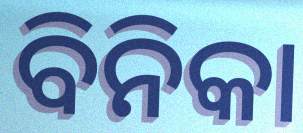
ବିନିକା